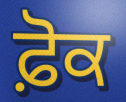
ਫ਼ੋਕ